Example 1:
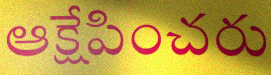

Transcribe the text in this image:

ఆక్షేపించరు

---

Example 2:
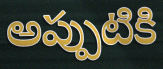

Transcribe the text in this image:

అప్పుటికి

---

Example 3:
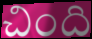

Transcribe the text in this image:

చింది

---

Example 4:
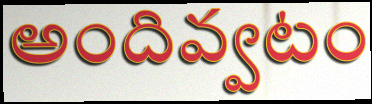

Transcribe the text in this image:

అందివ్వటం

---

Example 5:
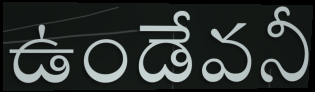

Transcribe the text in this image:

ఉండేవనీ